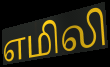
எமிலி